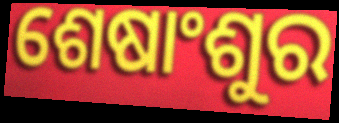
ଶେଷାଂଶୁର